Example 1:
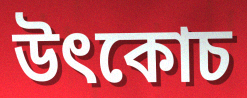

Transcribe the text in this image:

উৎকোচ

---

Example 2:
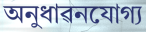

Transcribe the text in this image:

অনুধাৱনযোগ্য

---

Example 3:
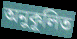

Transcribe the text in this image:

অনুকূলিত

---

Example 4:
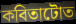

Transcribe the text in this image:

কবিতাটোত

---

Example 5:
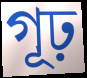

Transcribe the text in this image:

গূঢ়